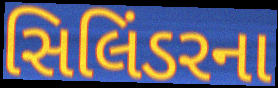
સિલિંડરના